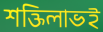
শক্তিলাভই